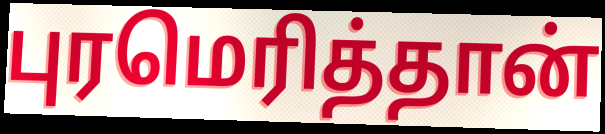
புரமெரித்தான்